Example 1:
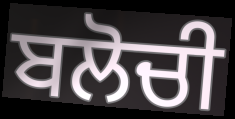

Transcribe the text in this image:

ਬਲੋਚੀ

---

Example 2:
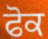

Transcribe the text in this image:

ਫੋਕ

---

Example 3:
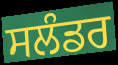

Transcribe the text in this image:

ਸਲੰਡਰ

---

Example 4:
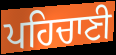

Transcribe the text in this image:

ਪਹਿਚਾਣੀ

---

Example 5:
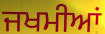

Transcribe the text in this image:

ਜਖਮੀਆਂ